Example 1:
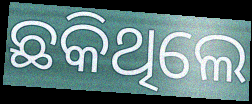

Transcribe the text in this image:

ଛକିଥିଲେ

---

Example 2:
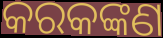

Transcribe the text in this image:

କରକଙ୍କଣ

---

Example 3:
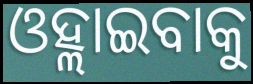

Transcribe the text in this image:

ଓହ୍ଲାଇବାକୁ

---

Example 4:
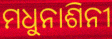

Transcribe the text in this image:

ମଧୁନାଶିନୀ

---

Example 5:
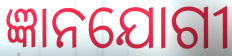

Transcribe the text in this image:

ଜ୍ଞାନଯୋଗୀ